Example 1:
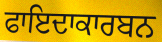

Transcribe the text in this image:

ਫਾਇਦਾਕਾਰਬਨ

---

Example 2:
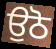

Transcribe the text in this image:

ਉਠੋ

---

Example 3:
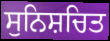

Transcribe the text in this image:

ਸੁਨਿਸ਼ਚਿਤ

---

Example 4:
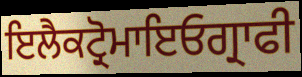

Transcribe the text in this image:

ਇਲੈਕਟ੍ਰੋਮਾਇਓਗ੍ਰਾਫੀ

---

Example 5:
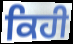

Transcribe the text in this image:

ਕਿਹੀ